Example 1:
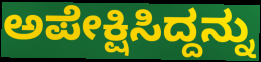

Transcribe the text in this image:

ಅಪೇಕ್ಷಿಸಿದ್ದನ್ನು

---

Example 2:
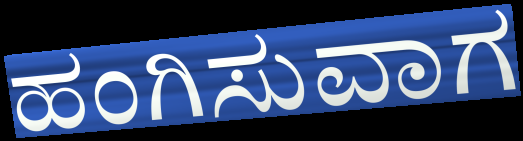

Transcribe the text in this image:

ಹಂಗಿಸುವಾಗ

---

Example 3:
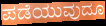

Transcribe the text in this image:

ಪಡೆಯುವುದೂ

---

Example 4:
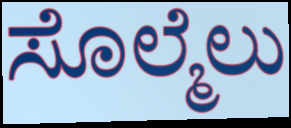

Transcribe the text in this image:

ಸೊಲ್ಮೆಲು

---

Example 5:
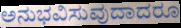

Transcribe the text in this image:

ಅನುಭವಿಸುವುದಾದರೂ